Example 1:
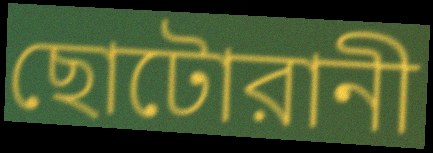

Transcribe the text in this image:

ছোটোরানী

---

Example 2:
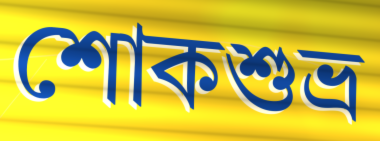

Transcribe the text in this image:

শোকশুভ্র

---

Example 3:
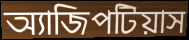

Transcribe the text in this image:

অ্যাজিপটিয়াস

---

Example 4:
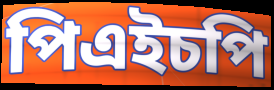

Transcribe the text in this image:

পিএইচপি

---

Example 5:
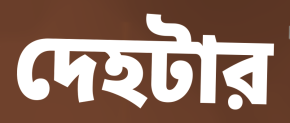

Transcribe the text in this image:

দেহটার